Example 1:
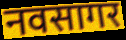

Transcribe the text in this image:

नवसागर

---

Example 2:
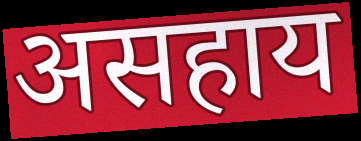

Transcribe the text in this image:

असहाय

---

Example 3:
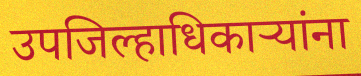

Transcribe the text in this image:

उपजिल्हाधिकाऱ्यांना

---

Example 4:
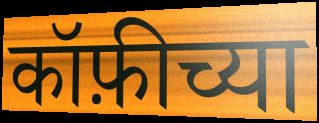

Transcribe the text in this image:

कॉफ़ीच्या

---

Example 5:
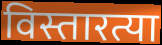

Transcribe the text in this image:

विस्तारत्या